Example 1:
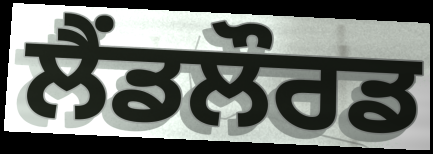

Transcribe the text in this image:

ਲੈਂਡਲੌਰਡ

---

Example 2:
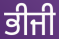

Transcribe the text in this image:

ਭੀਜੀ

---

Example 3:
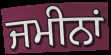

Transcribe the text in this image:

ਜਮੀਨਾਂ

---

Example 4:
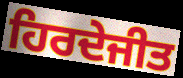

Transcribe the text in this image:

ਹਿਰਦੇਜੀਤ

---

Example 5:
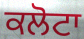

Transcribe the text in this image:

ਕਲੋਟਾ